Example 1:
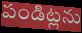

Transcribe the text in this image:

పండిట్లను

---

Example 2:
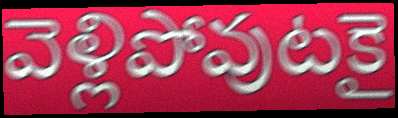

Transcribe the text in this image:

వెళ్లిపోవుటకై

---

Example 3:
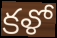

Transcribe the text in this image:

కళో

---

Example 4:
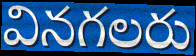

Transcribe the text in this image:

వినగలరు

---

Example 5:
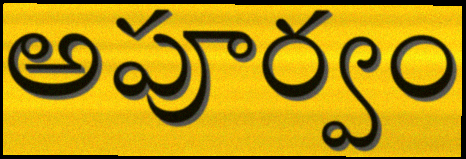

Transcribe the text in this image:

అపూర్వం